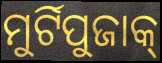
ମୁର୍ଟିପୁଜାକ୍